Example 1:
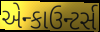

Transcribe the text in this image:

એન્કાઉન્ટર્સ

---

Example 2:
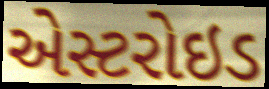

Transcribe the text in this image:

એસ્ટરોઇડ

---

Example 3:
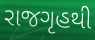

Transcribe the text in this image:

રાજગૃહથી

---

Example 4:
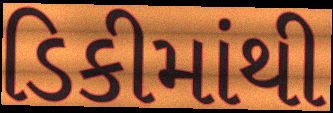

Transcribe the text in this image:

ડિકીમાંથી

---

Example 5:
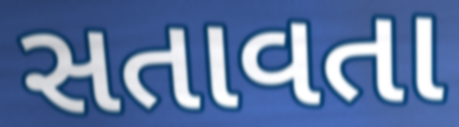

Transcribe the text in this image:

સતાવતા